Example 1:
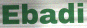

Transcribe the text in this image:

Ebadi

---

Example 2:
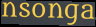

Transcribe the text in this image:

nsonga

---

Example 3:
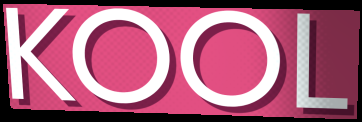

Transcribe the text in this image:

KOOL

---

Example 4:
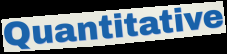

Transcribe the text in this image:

Quantitative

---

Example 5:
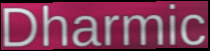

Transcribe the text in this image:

Dharmic